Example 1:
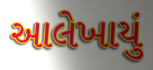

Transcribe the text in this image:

આલેખાયું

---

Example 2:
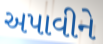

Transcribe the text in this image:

અપાવીને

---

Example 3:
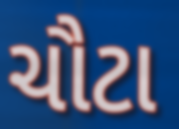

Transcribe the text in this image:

ચૌટા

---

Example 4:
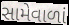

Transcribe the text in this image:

સામેવાળાં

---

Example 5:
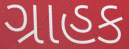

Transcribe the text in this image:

ગ્રાહક